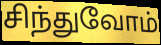
சிந்துவோம்